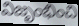
విజృంభించి